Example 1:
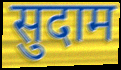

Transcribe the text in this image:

सुदाम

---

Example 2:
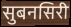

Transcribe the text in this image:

सुबनसिरी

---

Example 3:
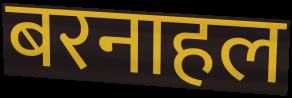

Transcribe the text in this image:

बरनाहल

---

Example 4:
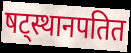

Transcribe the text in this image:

षट्स्थानपतित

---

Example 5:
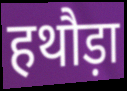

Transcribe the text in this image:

हथौड़ा